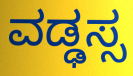
ವಡ್ಢಸ್ಸ